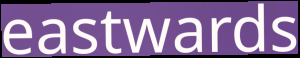
eastwards